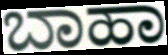
ಬಾಹಾ